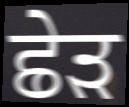
ਛੇੜ